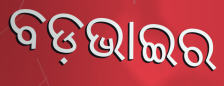
ବଡ଼ଭାଇର